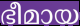
ഭീമായ